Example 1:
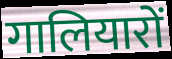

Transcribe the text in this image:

गालियारों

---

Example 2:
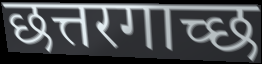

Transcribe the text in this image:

छत्तरगाच्छ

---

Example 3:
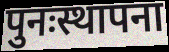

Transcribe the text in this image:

पुनःस्थापना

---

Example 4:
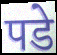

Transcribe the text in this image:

पडे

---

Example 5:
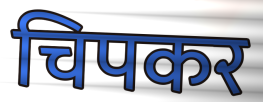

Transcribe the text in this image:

चिपकर